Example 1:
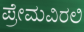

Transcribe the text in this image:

ಪ್ರೇಮವಿರಲಿ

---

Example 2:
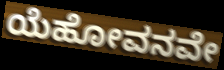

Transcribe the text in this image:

ಯೆಹೋವನವೇ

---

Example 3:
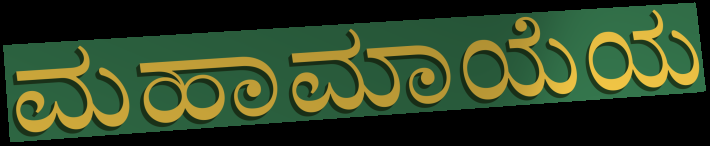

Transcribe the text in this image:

ಮಹಾಮಾಯೆಯ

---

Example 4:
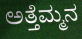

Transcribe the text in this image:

ಅತ್ತೆಮ್ಮನ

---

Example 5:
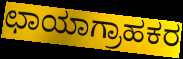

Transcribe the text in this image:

ಛಾಯಾಗ್ರಾಹಕರ